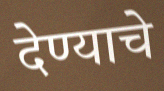
देण्याचे